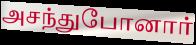
அசந்துபோனார்